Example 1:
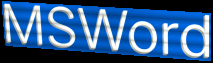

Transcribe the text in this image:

MSWord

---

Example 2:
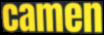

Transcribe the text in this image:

camen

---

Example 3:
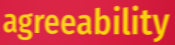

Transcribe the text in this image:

agreeability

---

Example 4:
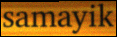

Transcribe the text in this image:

samayik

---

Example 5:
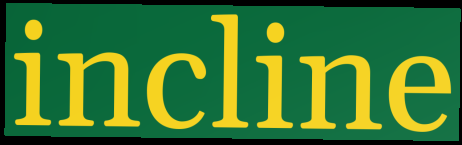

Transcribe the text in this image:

incline